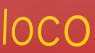
loco